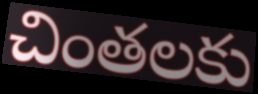
చింతలకు